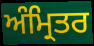
ਅੰਮ੍ਰਿਤਰ